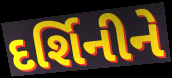
દર્શિનીને